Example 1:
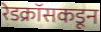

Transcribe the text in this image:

रेडक्रॉसकडून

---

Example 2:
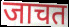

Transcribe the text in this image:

जाचत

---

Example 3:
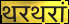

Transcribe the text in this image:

थरथरां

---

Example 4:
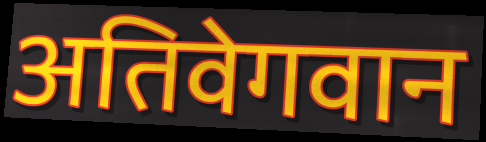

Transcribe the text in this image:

अतिवेगवान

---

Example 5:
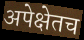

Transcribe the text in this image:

अपेक्षेतच